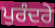
ਪੁਰੰਦਰੇ